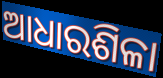
ଆଧାରଶିଳା